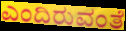
ಎಂದಿರುವಂತೆ